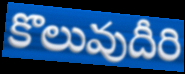
కొలువుదీరి